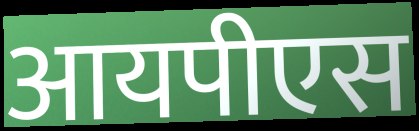
आयपीएस